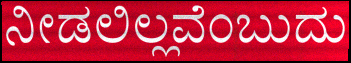
ನೀಡಲಿಲ್ಲವೆಂಬುದು